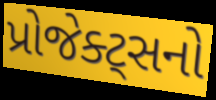
પ્રોજેક્ટ્સનો